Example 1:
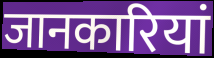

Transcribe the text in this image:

जानकारियां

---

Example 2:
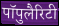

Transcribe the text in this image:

पॉपुलैरिटी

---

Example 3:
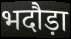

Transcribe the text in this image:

भदौड़ा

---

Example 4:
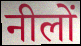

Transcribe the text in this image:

नीलों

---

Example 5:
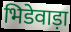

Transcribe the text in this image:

भिडेवाड़ा